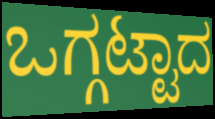
ಒಗ್ಗಟ್ಟಾದ